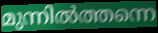
മുന്നിൽത്തന്നെ